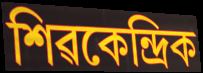
শিৱকেন্দ্ৰিক